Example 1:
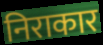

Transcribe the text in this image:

निराकार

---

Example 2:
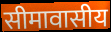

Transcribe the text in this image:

सीमावासीय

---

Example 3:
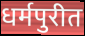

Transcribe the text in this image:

धर्मपुरीत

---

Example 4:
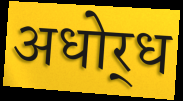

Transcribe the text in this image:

अधोर्ध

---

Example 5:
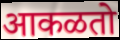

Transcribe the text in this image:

आकळतो